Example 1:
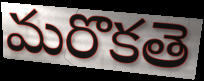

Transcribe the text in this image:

మరొకతె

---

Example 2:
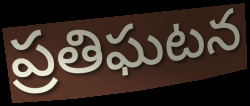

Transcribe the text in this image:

ప్రతిఘటన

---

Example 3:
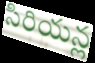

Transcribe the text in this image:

సిరియన్ల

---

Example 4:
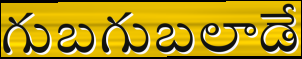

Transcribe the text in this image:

గుబగుబలాడే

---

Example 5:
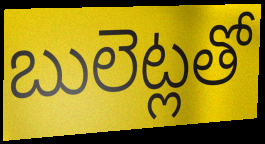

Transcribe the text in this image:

బులెట్లతో